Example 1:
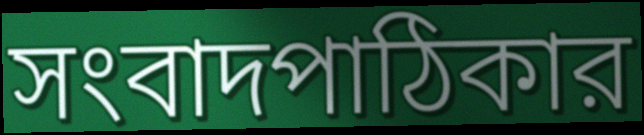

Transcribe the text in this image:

সংবাদপাঠিকার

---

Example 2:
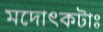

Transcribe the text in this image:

মদোৎকটাঃ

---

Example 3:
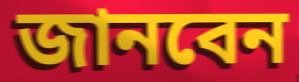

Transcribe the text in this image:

জানবেন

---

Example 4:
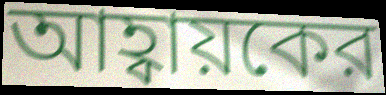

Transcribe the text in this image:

আহ্বায়কের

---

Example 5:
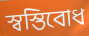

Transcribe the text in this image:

স্বস্তিবোধ